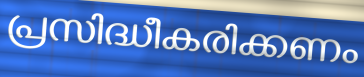
പ്രസിദ്ധീകരിക്കണം